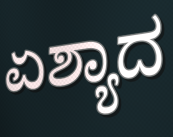
ಏಶ್ಯಾದ